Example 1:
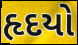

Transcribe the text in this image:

હૃદયો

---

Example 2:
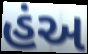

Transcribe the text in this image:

હંઅ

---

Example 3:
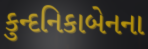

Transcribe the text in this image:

કુન્દનિકાબેનના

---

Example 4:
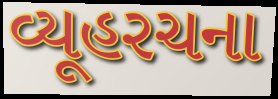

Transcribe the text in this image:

વ્યૂહરચના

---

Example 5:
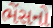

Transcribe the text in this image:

ભેંસનો